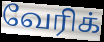
வேரிக்